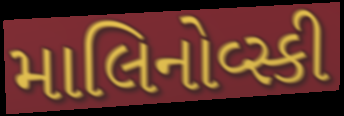
માલિનોવ્સ્કી